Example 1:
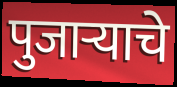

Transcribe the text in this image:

पुजाऱ्याचे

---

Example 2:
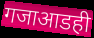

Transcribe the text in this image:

गजाआडही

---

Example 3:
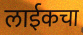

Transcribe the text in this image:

लाईकचा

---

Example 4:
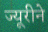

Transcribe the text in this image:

ज्यूरीने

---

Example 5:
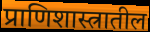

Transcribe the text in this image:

प्राणिशास्त्रातील